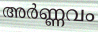
അർണ്ണവം